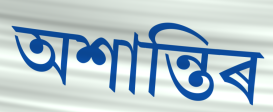
অশান্তিৰ